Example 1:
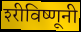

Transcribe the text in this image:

श्रीविष्णूनी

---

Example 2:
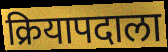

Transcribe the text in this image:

क्रियापदाला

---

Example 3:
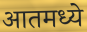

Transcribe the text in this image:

आतमध्ये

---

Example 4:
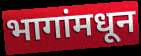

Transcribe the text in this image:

भागांमधून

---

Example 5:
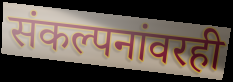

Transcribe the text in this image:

संकल्पनांवरही